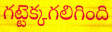
గట్టెక్కగలిగింది